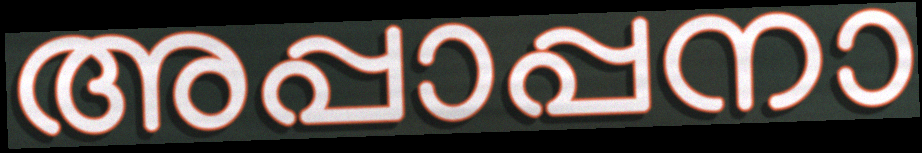
അപ്പാപ്പനാ